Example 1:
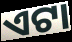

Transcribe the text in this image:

ଏଟା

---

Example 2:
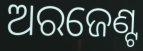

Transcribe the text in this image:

ଅରଜେଣ୍ଟ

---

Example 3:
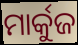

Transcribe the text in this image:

ମାର୍କୁଜ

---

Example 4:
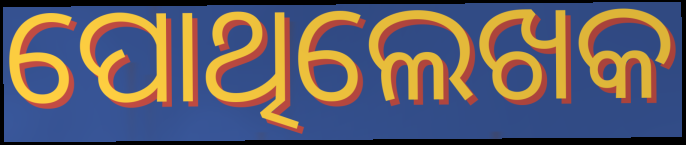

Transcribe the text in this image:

ପୋଥିଲେଖକ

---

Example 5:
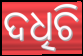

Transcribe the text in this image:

ଦଧିଚି